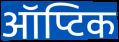
ऑप्टिक